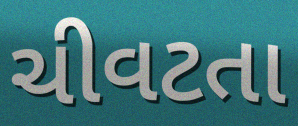
ચીવટતા